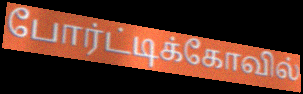
போர்ட்டிக்கோவில்